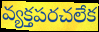
వ్యక్తపరచలేక